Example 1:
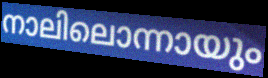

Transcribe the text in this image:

നാലിലൊന്നായും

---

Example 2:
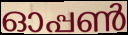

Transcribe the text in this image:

ഓപ്പൺ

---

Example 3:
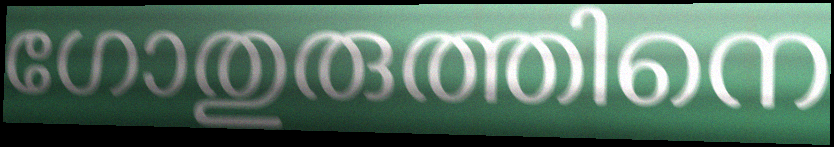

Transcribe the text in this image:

ഗോതുരുത്തിനെ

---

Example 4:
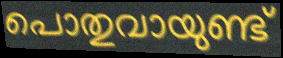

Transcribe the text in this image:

പൊതുവായുണ്ട്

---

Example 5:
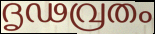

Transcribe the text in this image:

ദൃഢവ്രതം